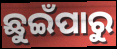
ଛୁଇଁପାରୁ